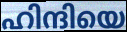
ഹിന്ദിയെ